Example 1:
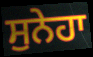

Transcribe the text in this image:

ਸੁਨੇਹਾ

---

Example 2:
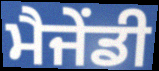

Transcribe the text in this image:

ਮੈਜੇਂਡੀ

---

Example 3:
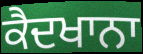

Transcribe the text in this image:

ਕੈਦਖਾਨਾ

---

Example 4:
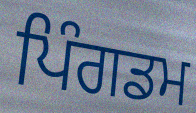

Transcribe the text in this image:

ਪਿੰਗਡਮ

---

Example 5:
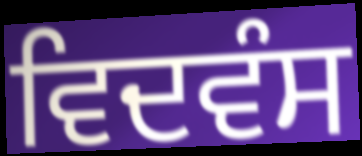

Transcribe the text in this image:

ਵਿਦਵੰਸ